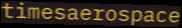
timesaerospace